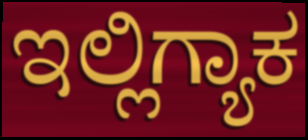
ಇಲ್ಲಿಗ್ಯಾಕ